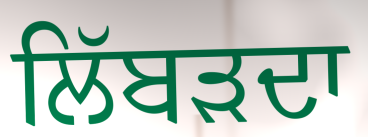
ਲਿੱਬੜਦਾ